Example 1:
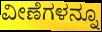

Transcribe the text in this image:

ವೀಣೆಗಳನ್ನೂ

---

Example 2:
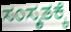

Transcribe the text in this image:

ಸಂಸ್ಕೃತಕ್ಕೆ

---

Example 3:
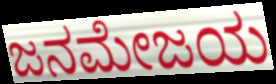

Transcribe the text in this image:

ಜನಮೇಜಯ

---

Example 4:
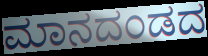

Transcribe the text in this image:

ಮಾನದಂಡದ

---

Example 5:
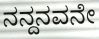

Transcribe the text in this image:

ನನ್ದನವನೇ